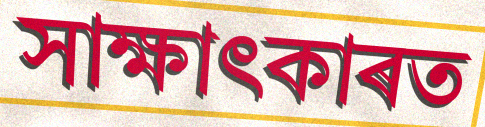
সাক্ষাৎকাৰত